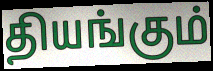
தியங்கும்